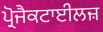
ਪ੍ਰੋਜੈਕਟਾਈਲਜ਼